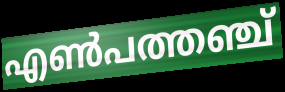
എൺപത്തഞ്ച്